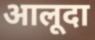
आलूदा